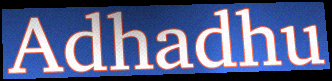
Adhadhu